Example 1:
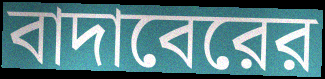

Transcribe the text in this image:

বাদাবেরের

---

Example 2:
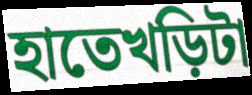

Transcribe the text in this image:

হাতেখড়িটা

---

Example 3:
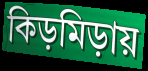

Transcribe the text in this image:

কিড়মিড়ায়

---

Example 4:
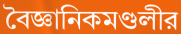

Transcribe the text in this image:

বৈজ্ঞানিকমণ্ডলীর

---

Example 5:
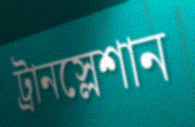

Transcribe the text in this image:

ট্রানস্লেশান